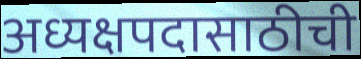
अध्यक्षपदासाठीची